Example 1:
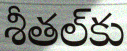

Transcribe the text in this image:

శీతల్‌కు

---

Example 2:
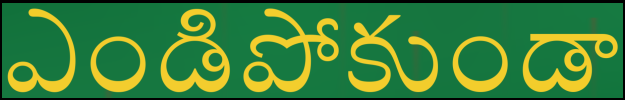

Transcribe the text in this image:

ఎండిపోకుండా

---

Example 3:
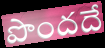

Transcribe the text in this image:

పొందదే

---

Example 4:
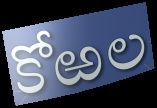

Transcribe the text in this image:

కోఱల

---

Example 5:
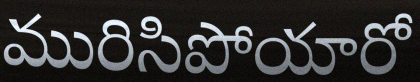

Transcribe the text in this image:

మురిసిపోయారో